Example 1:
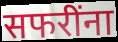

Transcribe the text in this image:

सफरींना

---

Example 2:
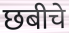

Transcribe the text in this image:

छबीचे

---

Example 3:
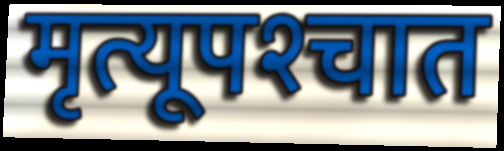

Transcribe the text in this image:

मृत्यूपश्चात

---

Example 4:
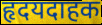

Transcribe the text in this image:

हृदयदाहक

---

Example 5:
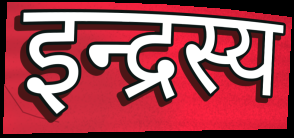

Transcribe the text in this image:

इन्द्रस्य